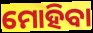
ମୋହିବା